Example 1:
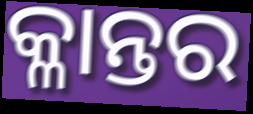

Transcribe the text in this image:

କ୍ଳାନ୍ତର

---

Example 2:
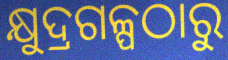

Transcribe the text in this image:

କ୍ଷୁଦ୍ରଗଳ୍ପଠାରୁ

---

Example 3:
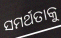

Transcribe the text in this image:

ସମର୍ଥତାକୁ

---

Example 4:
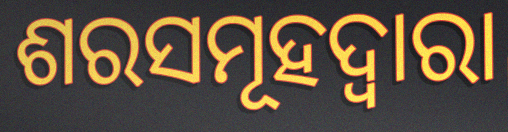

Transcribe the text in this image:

ଶରସମୂହଦ୍ୱାରା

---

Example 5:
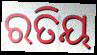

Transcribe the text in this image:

ରତିୟ